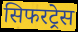
सिफरट्रेस